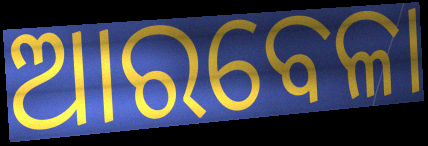
ଆରବେଳା